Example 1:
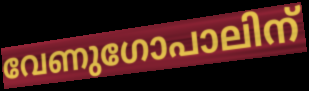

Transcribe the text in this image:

വേണുഗോപാലിന്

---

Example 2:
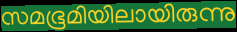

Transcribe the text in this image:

സമഭൂമിയിലായിരുന്നു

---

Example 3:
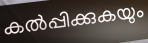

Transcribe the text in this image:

കൽപ്പിക്കുകയും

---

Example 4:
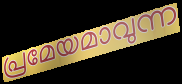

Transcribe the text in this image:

പ്രമേയമാവുന്ന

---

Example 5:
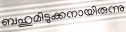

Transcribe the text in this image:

ബഹുമിടുക്കനായിരുന്നു